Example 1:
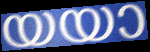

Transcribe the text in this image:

യയാ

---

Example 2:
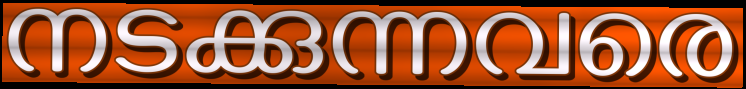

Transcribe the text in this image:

നടക്കുന്നവരെ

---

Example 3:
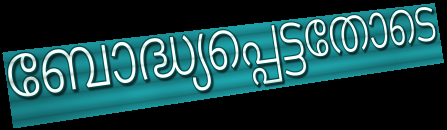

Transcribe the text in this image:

ബോദ്ധ്യപ്പെട്ടതോടെ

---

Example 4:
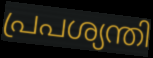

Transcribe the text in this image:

പ്രപശ്യന്തി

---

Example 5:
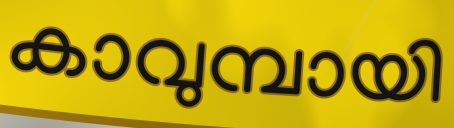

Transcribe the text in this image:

കാവുമ്പായി